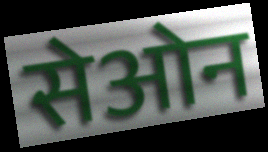
सेओन